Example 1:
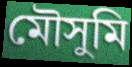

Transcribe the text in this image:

মৌসুমি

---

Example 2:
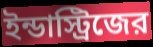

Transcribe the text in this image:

ইন্ডাস্ট্রিজের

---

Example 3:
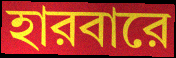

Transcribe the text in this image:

হারবারে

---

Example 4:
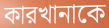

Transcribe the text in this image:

কারখানাকে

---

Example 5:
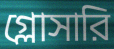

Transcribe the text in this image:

গ্লোসারি